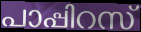
പാപ്പിറസ്